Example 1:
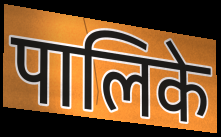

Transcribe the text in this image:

पालिके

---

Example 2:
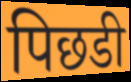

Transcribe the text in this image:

पिछडी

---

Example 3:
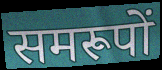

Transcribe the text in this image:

समरूपों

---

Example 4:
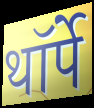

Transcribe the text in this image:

थॉर्पे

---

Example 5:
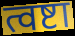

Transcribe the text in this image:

त्वष्टा